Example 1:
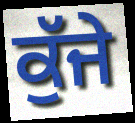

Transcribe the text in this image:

ਕੁੱਜੇ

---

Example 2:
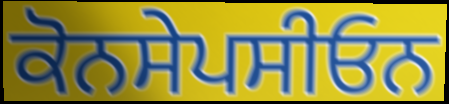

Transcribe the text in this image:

ਕੋਨਸੇਪਸੀਓਨ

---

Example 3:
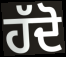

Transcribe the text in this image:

ਹੱਦੋ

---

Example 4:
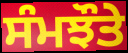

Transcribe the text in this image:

ਸੰਮਝੌਤੇ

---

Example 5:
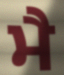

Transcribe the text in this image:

ਮੈ